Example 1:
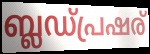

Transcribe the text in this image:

ബ്ലഡ്പ്രഷര്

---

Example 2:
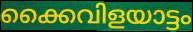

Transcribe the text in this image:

ക്കൈവിളയാട്ടം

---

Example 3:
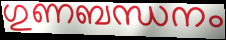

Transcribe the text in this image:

ഗുണബന്ധനം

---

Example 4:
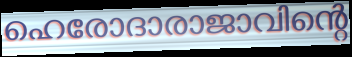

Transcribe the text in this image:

ഹെരോദാരാജാവിന്റെ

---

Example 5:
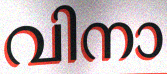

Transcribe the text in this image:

വിനാ